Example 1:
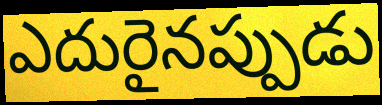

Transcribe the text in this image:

ఎదురైనప్పుడు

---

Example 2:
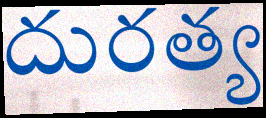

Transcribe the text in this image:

దురత్య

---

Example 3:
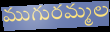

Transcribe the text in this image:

ముగురమ్మల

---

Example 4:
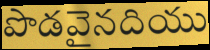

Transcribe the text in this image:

పొడవైనదియు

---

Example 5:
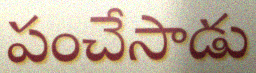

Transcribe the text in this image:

పంచేసాడు